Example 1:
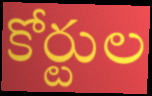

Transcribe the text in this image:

కోర్టుల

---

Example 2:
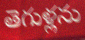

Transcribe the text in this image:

తెగుళ్లను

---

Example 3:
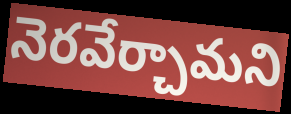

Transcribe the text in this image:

నెరవేర్చామని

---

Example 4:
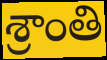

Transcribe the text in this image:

శ్రాంతి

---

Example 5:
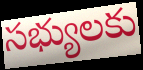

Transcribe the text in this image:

సభ్యులకు